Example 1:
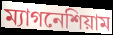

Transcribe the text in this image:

ম্যাগনেশিয়াম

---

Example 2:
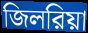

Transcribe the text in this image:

জিলরিয়া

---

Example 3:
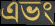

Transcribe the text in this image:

এভং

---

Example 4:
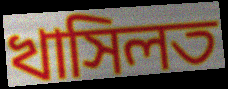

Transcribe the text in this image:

খাসিলত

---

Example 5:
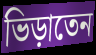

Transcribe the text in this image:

ভিড়াতেন